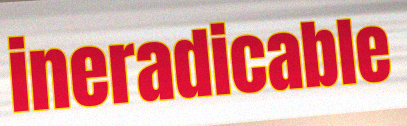
ineradicable